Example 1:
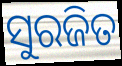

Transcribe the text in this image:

ସୁରଜିତ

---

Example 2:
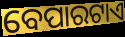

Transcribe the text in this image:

ବେପାରଟାଏ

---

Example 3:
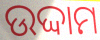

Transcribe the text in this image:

ଉଦ୍ଦାମ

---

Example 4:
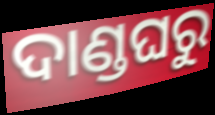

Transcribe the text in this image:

ଦାଣ୍ଡଘରୁ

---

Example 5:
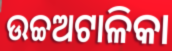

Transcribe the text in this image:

ଉଚ୍ଚଅଟାଳିକା